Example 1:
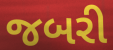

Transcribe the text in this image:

જબરી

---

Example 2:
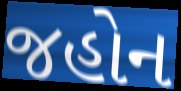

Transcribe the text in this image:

જહોન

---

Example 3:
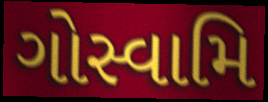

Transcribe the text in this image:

ગોસ્વામિ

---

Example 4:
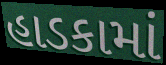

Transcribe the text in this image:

હાડકામાં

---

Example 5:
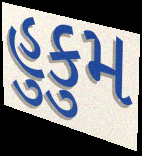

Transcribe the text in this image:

હુકુમ